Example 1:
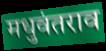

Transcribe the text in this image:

मधुवंतराव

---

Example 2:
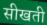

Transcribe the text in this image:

सीखती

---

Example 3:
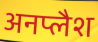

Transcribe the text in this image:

अनप्लैश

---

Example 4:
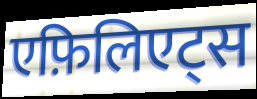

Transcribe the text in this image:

एफ़िलिएट्स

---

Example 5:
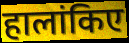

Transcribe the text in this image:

हालांकिए